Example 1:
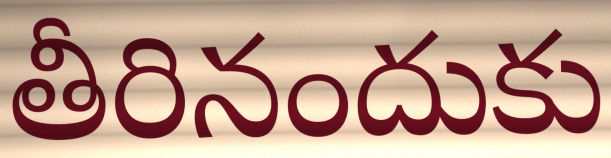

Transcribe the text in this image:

తీరినందుకు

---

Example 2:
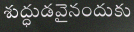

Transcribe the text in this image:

శుద్ధుడవైనందుకు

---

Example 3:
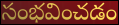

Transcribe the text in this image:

సంభవించడం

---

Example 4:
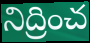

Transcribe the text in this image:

నిద్రించ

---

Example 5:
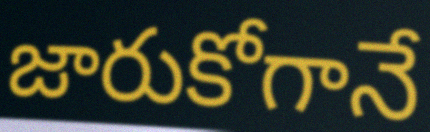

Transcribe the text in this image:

జారుకోగానే